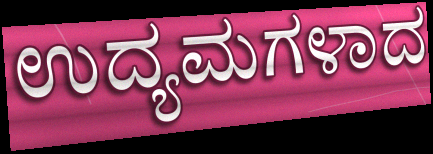
ಉದ್ಯಮಗಳಾದ